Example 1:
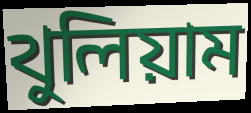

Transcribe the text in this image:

থুলিয়াম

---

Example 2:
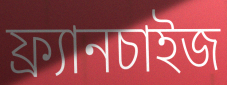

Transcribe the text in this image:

ফ্র্যানচাইজ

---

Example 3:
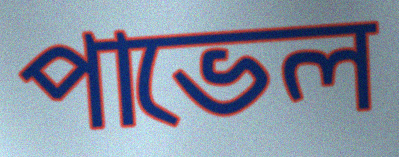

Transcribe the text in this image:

পাভেল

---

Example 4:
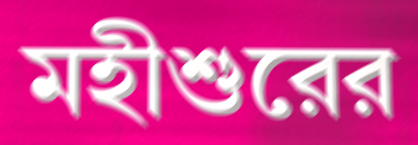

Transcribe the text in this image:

মহীশুরের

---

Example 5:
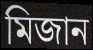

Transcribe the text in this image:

মিজান